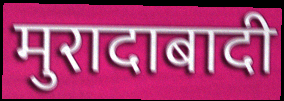
मुरादाबादी